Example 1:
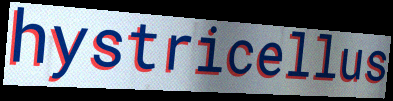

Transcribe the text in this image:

hystricellus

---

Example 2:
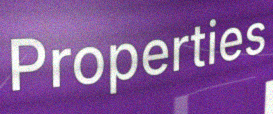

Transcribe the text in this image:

Properties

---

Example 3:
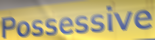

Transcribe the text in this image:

Possessive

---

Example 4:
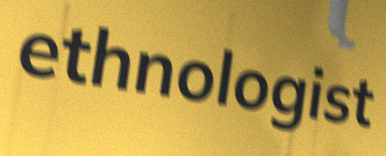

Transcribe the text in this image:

ethnologist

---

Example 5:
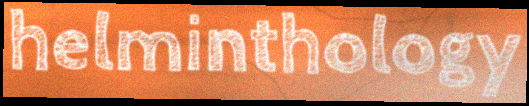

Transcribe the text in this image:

helminthology